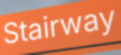
Stairway